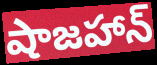
షాజహాన్